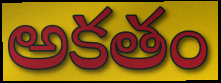
అకతం